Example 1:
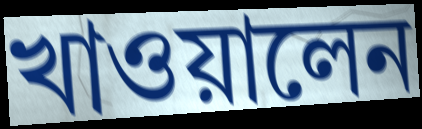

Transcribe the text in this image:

খাওয়ালেন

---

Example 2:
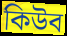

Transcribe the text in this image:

কিউব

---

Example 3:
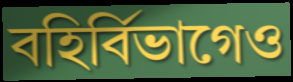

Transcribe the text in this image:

বহির্বিভাগেও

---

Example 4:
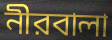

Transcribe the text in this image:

নীরবালা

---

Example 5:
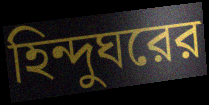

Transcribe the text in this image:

হিন্দুঘরের